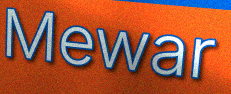
Mewar